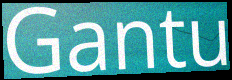
Gantu